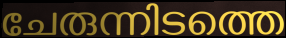
ചേരുന്നിടത്തെ